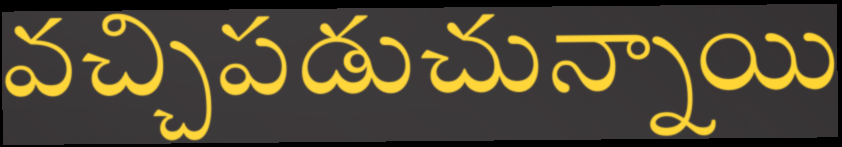
వచ్చిపడుచున్నాయి